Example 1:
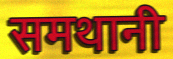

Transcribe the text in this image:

समथानी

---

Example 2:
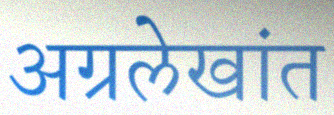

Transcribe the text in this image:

अग्रलेखांत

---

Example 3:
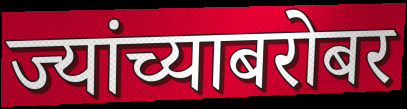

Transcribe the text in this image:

ज्यांच्याबरोबर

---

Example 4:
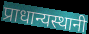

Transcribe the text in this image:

प्राधान्यस्थानी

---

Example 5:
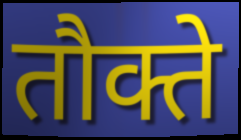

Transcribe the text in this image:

तौक्ते